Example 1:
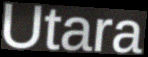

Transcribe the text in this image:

Utara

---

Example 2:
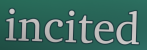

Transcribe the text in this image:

incited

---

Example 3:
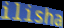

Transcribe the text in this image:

ilisha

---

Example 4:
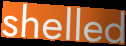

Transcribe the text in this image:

shelled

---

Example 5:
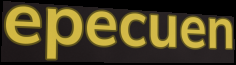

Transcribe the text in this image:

epecuen